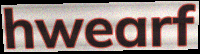
hwearf